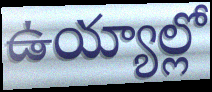
ఉయ్యాల్లో